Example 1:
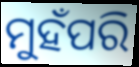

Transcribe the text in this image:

ମୁହଁପରି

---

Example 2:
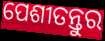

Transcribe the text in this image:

ପେଶୀତନ୍ତୁର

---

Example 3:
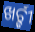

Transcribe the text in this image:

ଖର୍ଚ୍ଚୀ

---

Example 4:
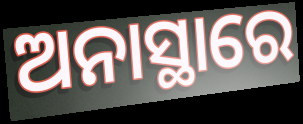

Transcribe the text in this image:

ଅନାସ୍ଥାରେ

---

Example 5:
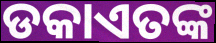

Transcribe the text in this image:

ଡକାଏତଙ୍କ